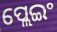
ପ୍ଲେଇଂ